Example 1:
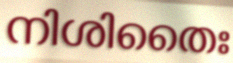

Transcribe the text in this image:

നിശിതൈഃ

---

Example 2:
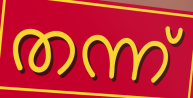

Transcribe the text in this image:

തന്ന്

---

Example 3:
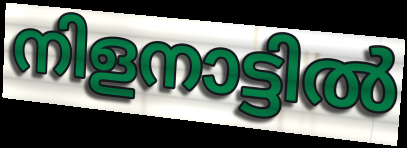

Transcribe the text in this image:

നിളനാട്ടിൽ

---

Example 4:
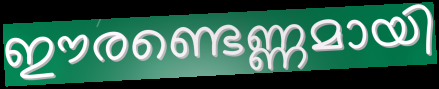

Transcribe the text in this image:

ഈരണ്ടെണ്ണമായി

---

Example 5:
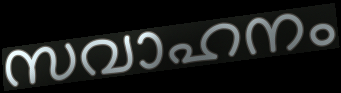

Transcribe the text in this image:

സവാഹനം